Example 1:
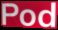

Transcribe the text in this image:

Pod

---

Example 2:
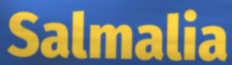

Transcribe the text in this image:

Salmalia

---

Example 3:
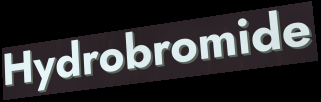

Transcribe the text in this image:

Hydrobromide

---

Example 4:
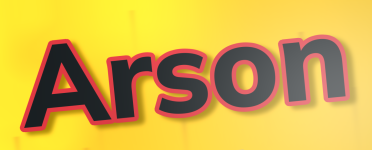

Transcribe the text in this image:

Arson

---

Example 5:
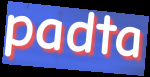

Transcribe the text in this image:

padta